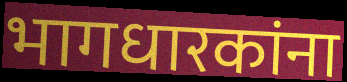
भागधारकांना